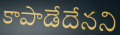
కాపాడేదేనని